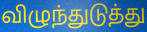
விழுந்துடுத்து